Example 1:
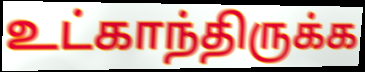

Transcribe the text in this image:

உட்காந்திருக்க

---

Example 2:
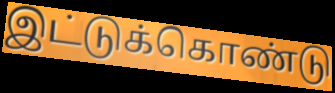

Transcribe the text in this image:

இட்டுக்கொண்டு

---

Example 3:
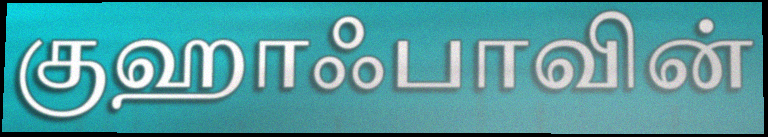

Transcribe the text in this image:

குஹாஃபாவின்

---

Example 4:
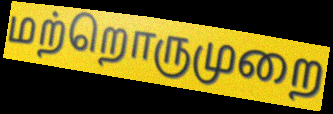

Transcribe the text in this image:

மற்றொருமுறை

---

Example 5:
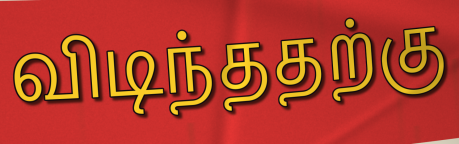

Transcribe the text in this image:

விடிந்ததற்கு